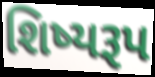
શિષ્યરૂપ